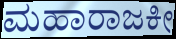
ಮಹಾರಾಜಕೀ